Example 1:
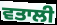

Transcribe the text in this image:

ਵਤਾਲੀ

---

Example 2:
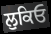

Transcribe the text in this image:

ਲੁਕਿਓ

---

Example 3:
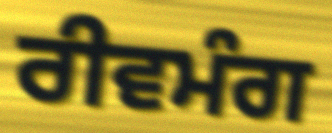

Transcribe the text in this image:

ਰੀਵਮੰਗ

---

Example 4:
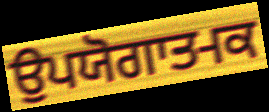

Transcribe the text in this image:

ਉਪਯੋਗਾਤ੍ਮਕ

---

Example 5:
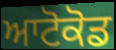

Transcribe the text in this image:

ਆਟੋਕੋਡ